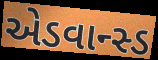
એડવાન્સ્ડ